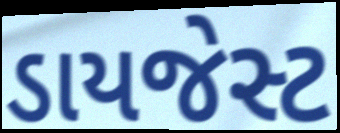
ડાયજેસ્ટ